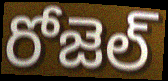
రోజెల్